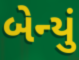
બેન્યું